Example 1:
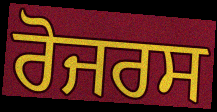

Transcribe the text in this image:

ਰੋਜਰਸ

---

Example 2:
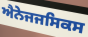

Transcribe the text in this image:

ਐਨੇਜਜਸਿਕਸ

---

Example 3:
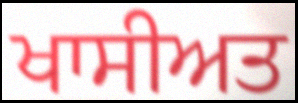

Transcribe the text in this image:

ਖਾਸੀਅਤ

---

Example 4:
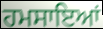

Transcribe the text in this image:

ਹਮਸਾਇਆਂ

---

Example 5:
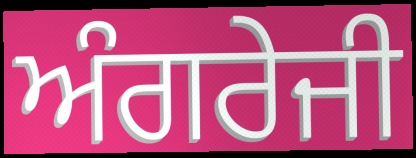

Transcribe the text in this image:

ਅੰਗਰੇਜੀ